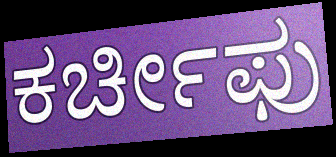
ಕರ್ಚೀಫು